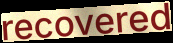
recovered